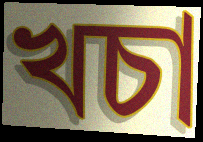
খচা